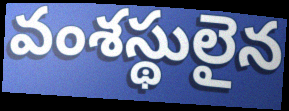
వంశస్థులైన